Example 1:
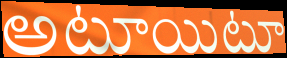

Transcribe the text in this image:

అటూయిటూ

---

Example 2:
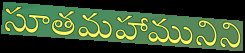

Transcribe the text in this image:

సూతమహామునిని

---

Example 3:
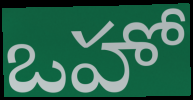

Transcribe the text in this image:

ఒహో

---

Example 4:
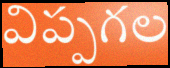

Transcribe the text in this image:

విప్పగల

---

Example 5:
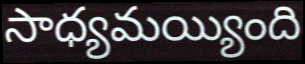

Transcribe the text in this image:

సాధ్యమయ్యింది